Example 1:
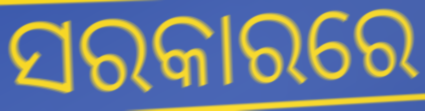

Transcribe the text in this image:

ସରକାରରେ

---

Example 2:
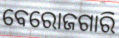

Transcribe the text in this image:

ବେରୋଜଗାରି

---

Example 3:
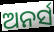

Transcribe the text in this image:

ଅନର୍ସ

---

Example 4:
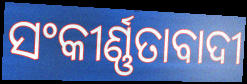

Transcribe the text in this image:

ସଂକୀର୍ଣ୍ଣତାବାଦୀ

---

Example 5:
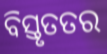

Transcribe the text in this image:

ବିସ୍ତୃତତର